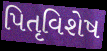
પિતૃવિશેષ